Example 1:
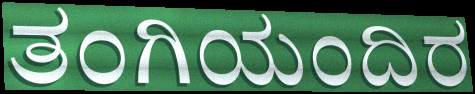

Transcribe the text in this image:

ತಂಗಿಯಂದಿರ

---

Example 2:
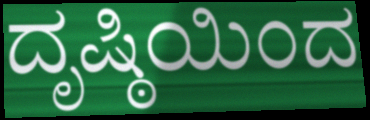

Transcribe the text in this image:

ದೃಷ್ಠಿಯಿಂದ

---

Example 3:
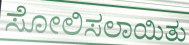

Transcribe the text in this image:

ಸೋಲಿಸಲಾಯಿತು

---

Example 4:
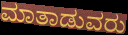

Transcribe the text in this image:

ಮಾತಾಡುವರು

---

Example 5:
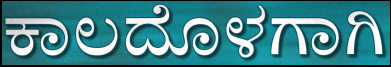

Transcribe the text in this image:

ಕಾಲದೊಳಗಾಗಿ